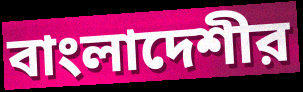
বাংলাদেশীর